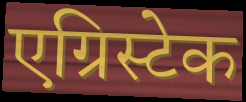
एग्रिस्टेक